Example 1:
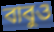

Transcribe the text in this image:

বাবুও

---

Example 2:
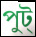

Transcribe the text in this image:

পুট্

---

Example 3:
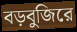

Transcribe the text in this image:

বড়বুজিরে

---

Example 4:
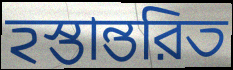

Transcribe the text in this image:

হস্তান্তরিত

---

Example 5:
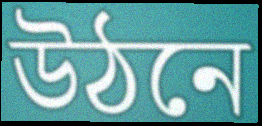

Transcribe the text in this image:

উঠনে